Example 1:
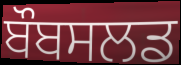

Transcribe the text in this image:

ਬੌਬਸਲਡ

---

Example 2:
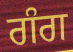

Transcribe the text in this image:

ਗੰਗ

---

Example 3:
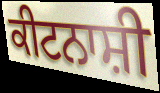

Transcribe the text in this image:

ਕੀਟਨਾਸ਼ੀ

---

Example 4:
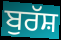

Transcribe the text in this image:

ਬੁਰੱਸ਼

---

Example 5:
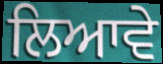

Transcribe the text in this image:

ਲਿਆਵੇ